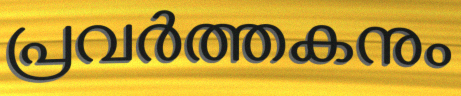
പ്രവർത്തകനും